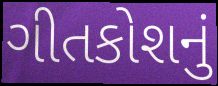
ગીતકોશનું